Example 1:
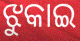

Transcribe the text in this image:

ଝୁକାଇ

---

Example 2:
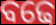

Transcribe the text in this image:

ବଢେ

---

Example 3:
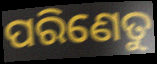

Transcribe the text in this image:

ପରିଣେତୁ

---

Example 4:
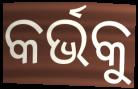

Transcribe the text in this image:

କର୍ଭକୁ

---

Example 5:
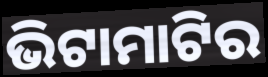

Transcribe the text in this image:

ଭିଟାମାଟିର